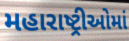
મહારાષ્ટ્રીઓમાં